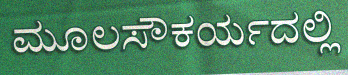
ಮೂಲಸೌಕರ್ಯದಲ್ಲಿ